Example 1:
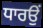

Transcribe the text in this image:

ਧਾਰਉਂ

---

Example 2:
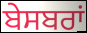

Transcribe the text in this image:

ਬੇਸਬਰਾਂ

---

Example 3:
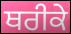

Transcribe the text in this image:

ਥਰੀਕੇ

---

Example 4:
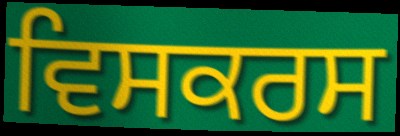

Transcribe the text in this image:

ਵਿਸਕਰਸ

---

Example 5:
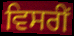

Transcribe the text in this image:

ਵਿਸਰੀਂ